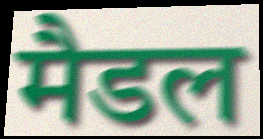
मैडल